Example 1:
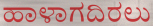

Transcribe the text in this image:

ಹಾಳಾಗದಿರಲು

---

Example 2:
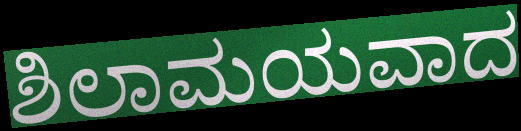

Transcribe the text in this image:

ಶಿಲಾಮಯವಾದ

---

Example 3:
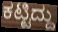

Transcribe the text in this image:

ಕಟ್ಟಿದ್ದು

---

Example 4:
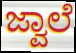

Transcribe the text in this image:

ಜ್ವಾಲೆ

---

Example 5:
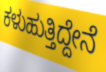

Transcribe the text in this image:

ಕಳುಹುತ್ತಿದ್ದೇನೆ